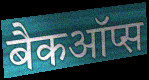
बैकऑप्स